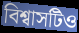
বিশ্বাসটিও